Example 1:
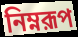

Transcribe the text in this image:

নিম্নরূপ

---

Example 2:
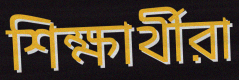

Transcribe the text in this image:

শিক্ষার্থীরা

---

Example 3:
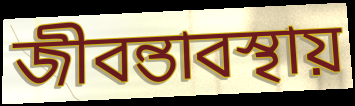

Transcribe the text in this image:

জীবন্তাবস্থায়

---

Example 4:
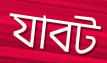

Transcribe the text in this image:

যাবট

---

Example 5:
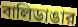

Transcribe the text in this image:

বালিডাঙার